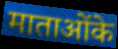
माताओंके